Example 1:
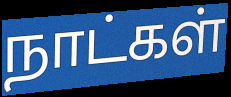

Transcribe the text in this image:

நாட்கள்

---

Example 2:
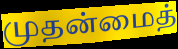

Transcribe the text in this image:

முதன்மைத்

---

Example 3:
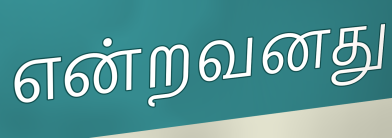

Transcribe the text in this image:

என்றவனது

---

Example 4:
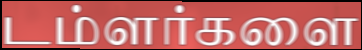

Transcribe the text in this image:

டம்ளர்களை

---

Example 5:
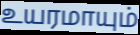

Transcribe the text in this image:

உயரமாயும்